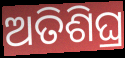
ଅତିଶିଘ୍ର